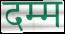
दम्म